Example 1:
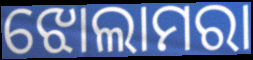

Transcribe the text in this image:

ଝୋଲାମରା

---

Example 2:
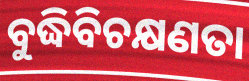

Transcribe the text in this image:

ବୁଦ୍ଧିବିଚକ୍ଷଣତା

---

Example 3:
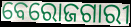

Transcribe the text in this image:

ବେରୋଜଗାରୀ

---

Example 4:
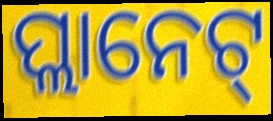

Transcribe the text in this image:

ପ୍ଲାନେଟ୍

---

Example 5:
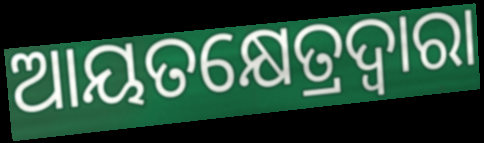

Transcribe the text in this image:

ଆୟତକ୍ଷେତ୍ରଦ୍ଵାରା